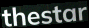
thestar